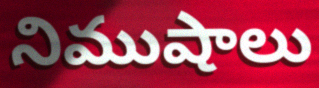
నిముషాలు